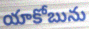
యాకోబును